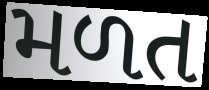
મળત